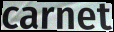
carnet